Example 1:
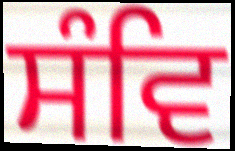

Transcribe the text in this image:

ਸੰਵਿ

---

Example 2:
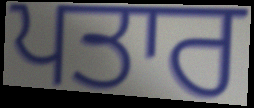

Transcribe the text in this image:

ਪਤਾਰ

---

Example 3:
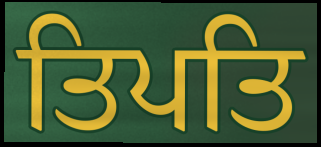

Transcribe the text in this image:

ਤਿਪਤਿ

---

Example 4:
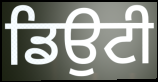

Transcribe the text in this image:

ਡਿਉਟੀ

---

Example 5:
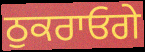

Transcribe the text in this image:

ਠੁਕਰਾਓਗੇ